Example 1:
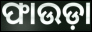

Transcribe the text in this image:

ଫାଉଡ଼ା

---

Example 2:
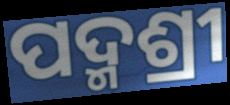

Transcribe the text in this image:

ପଦ୍ମଶ୍ରୀ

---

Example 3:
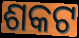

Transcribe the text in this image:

ଶକଟ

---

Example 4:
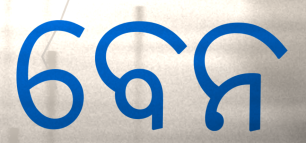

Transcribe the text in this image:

ବେନ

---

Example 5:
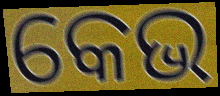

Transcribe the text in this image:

କେଭ